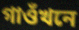
গাওঁখনে